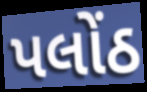
પલોંઠ